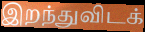
இறந்துவிடக்